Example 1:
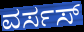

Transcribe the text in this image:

ವರ್ಸಸ್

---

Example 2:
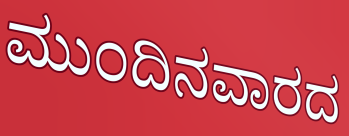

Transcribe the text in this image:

ಮುಂದಿನವಾರದ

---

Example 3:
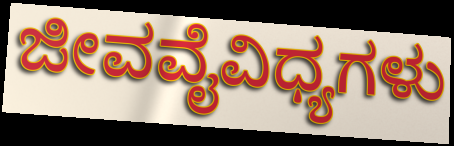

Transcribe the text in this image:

ಜೀವವೈವಿಧ್ಯಗಳು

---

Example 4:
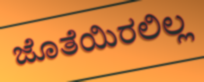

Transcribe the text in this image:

ಜೊತೆಯಿರಲಿಲ್ಲ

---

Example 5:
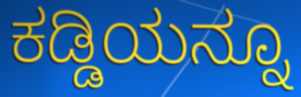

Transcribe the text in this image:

ಕಡ್ಡಿಯನ್ನೂ